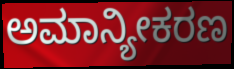
ಅಮಾನ್ಯೀಕರಣ